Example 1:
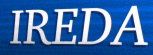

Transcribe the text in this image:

IREDA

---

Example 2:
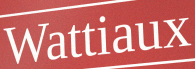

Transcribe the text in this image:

Wattiaux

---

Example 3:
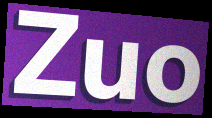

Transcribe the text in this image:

Zuo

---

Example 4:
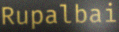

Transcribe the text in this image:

Rupalbai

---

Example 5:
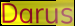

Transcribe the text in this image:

Darus